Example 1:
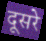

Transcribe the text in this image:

दूसरे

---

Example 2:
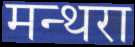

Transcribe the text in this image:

मन्थरा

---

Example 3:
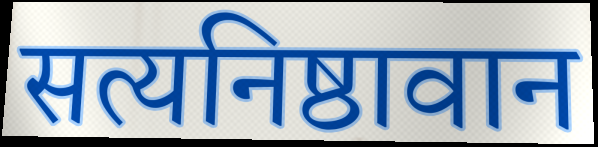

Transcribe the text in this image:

सत्यनिष्ठावान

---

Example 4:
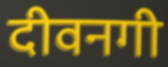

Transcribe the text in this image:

दीवनगी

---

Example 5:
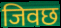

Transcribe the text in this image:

जिवछ